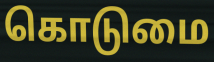
கொடுமை